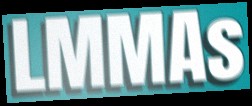
LMMAs